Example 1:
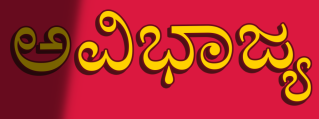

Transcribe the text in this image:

ಅವಿಭಾಜ್ಯ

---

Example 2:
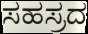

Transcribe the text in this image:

ಸಹಸ್ರದ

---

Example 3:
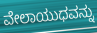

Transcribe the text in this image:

ವೇಲಾಯುಧವನ್ನು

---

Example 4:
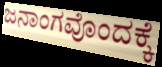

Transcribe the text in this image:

ಜನಾಂಗವೊಂದಕ್ಕೆ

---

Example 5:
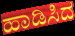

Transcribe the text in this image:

ಹಾಡಿಸಿದ